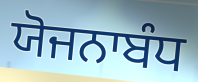
ਯੋਜਨਾਬੰਧ